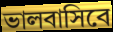
ভালবাসিবে